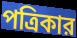
পত্রিকার